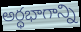
అర్ధభాగాన్ని